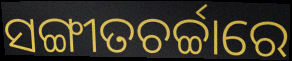
ସଙ୍ଗୀତଚର୍ଚ୍ଚାରେ